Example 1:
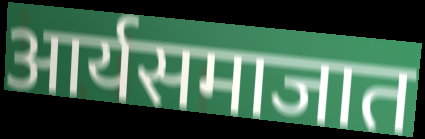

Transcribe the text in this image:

आर्यसमाजात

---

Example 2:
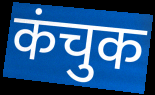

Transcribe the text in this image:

कंचुक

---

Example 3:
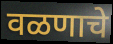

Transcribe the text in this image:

वळणाचे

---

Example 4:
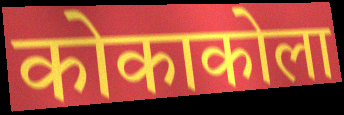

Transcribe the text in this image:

कोकाकोला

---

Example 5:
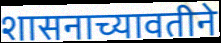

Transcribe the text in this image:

शासनाच्यावतीने